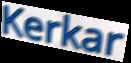
Kerkar